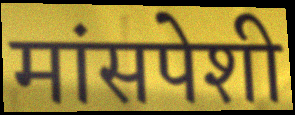
मांसपेशी